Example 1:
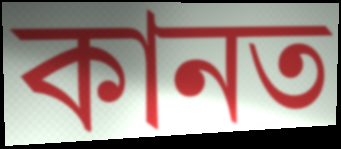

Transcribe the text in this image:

কানত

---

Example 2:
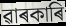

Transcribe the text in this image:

ৱাৰকাৰি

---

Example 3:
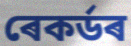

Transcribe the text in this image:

ৰেকৰ্ডৰ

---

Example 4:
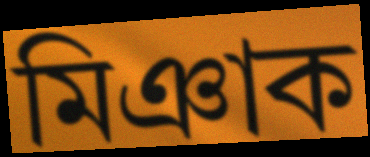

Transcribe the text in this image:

মিঞাক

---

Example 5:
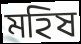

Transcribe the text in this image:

মহিষ